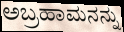
ಅಬ್ರಹಾಮನನ್ನು